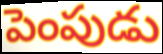
పెంపుడు